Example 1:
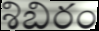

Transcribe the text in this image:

శిబిరం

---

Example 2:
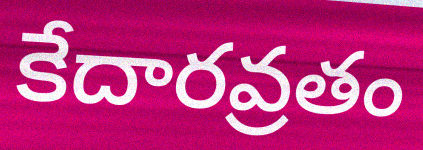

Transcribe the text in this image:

కేదారవ్రతం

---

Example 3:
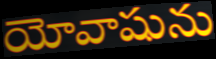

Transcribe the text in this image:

యోవాషును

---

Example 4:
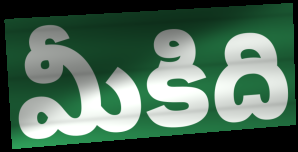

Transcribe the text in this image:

మీకిది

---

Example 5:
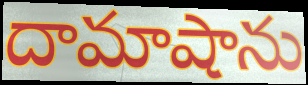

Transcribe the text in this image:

దామాషాను